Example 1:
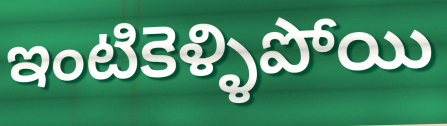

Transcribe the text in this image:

ఇంటికెళ్ళిపోయి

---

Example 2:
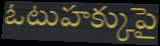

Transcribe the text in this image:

ఓటుహక్కుపై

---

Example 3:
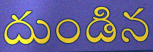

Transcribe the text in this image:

దుండిన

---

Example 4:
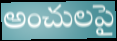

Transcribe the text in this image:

అంచులపై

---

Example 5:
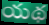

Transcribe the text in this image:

యథ